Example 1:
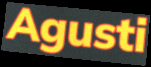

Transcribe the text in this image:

Agusti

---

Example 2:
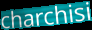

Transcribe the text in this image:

charchisi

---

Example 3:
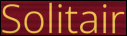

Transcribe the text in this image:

Solitair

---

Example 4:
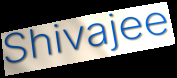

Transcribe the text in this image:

Shivajee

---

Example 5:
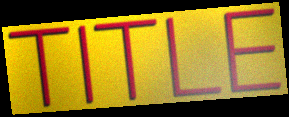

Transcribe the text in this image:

TITLE